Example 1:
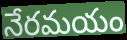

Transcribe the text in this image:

నేరమయం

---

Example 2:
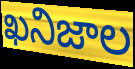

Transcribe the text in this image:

ఖనిజాల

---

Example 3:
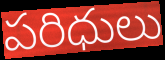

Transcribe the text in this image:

పరిధులు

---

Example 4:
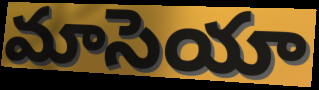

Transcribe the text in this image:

మాసెయా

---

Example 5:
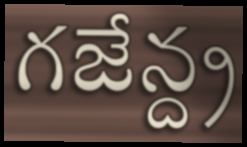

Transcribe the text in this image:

గజేన్ద్ర